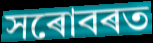
সৰোবৰত